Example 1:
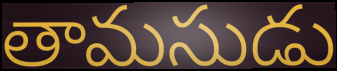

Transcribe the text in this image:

తామసుడు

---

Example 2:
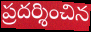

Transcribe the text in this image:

ప్రదర్శించిన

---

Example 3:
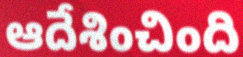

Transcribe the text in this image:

ఆదేశించింది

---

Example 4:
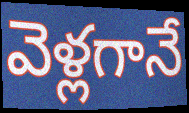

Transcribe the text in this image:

వెళ్లగానే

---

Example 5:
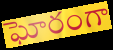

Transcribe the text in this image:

ఘోరంగా